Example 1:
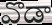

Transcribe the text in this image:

వొడా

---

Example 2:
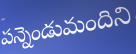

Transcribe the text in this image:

పన్నెండుమందిని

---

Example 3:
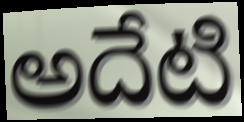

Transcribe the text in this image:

అదేటి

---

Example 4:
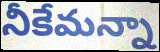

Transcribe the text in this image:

నీకేమన్నా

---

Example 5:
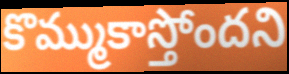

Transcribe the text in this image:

కొమ్ముకాస్తోందని